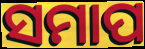
ସମାପ